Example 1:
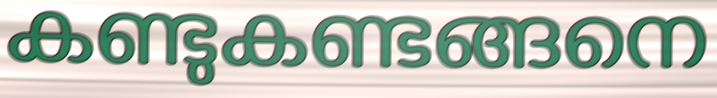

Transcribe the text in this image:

കണ്ടുകണ്ടങ്ങനെ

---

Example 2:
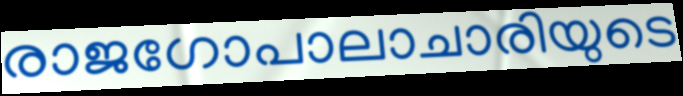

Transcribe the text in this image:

രാജഗോപാലാചാരിയുടെ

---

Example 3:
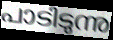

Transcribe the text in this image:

പാടിടുന്നു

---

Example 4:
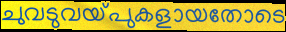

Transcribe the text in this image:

ചുവടുവയ്‌പുകളായതോടെ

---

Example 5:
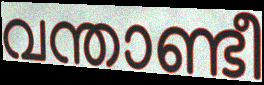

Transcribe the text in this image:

വന്താണ്ടീ